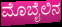
ಮೊಬೈಲಿನ